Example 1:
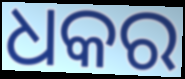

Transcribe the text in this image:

ଧକର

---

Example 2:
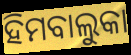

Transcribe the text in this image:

ହିମବାଲୁକା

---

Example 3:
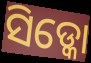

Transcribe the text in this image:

ସିଡ୍କୋ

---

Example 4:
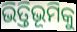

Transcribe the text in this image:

ଭିତ୍ତିଭୂମିକୁ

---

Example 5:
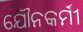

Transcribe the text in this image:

ଯୌନକର୍ମୀ